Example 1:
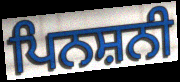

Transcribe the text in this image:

ਪਿਨਸ਼ਨੀ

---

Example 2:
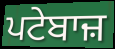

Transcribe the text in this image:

ਪਟੇਬਾਜ਼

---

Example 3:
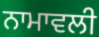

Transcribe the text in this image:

ਨਾਮਾਵਲੀ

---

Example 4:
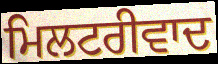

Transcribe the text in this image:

ਮਿਲਟਰੀਵਾਦ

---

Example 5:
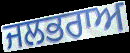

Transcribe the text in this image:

ਜਲਭਰਾਅ